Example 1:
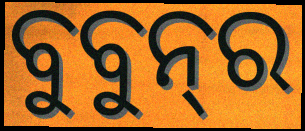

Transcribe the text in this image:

ବୁବୁନ୍‌ର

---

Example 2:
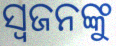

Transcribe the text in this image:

ସ୍ଵଜନଙ୍କୁ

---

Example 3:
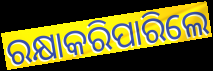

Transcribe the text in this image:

ରକ୍ଷାକରିପାରିଲେ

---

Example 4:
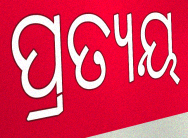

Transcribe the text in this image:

ପ୍ରତ୍ଯୟ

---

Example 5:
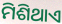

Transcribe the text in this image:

ମିଶିଥାଏ